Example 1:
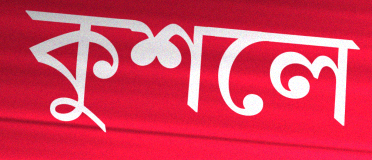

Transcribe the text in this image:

কুশলে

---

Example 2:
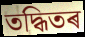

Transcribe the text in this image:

তদ্ধিতৰ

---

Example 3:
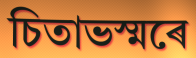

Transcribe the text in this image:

চিতাভস্মৰে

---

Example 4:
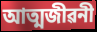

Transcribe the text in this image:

আত্মজীৱনী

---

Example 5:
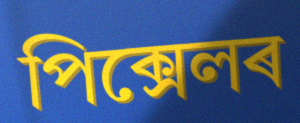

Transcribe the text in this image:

পিক্সেলৰ